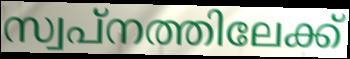
സ്വപ്നത്തിലേക്ക്